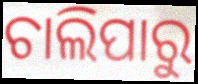
ଚାଲିପାରୁ